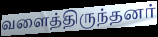
வளைத்திருந்தனர்